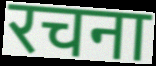
रचना